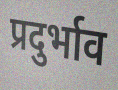
प्रदुर्भाव